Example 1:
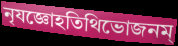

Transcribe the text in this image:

নৃযজ্ঞোহতিথিভোজনম্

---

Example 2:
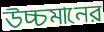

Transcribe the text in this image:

উচ্চমানের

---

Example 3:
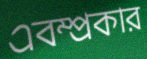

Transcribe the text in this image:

এবম্প্রকার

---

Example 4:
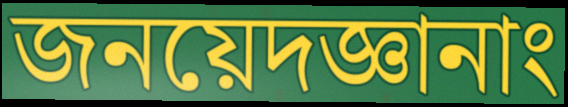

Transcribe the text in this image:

জনয়েদজ্ঞানাং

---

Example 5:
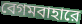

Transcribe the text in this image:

বেগমবাহারে